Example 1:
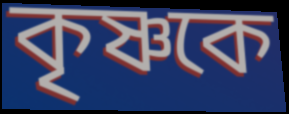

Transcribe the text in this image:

কৃষ্ণকে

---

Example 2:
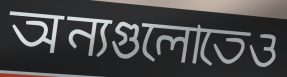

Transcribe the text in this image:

অন্যগুলোতেও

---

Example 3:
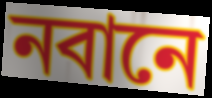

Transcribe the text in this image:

নবানে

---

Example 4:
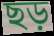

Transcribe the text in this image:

ছড়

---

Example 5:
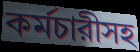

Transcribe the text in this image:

কর্মচারীসহ